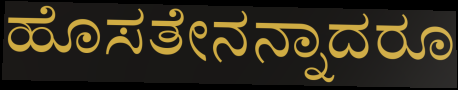
ಹೊಸತೇನನ್ನಾದರೂ